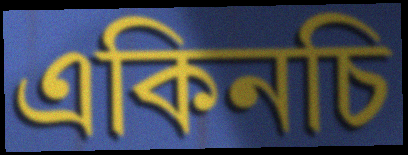
একিনচি